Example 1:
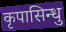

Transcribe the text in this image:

कृपासिन्धु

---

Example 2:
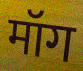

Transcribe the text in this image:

मॉग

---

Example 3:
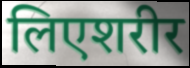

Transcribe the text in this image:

लिएशरीर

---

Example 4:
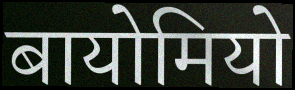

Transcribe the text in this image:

बायोमियो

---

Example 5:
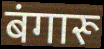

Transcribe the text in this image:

बंगारू